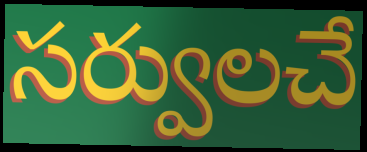
సర్వులచే